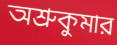
অশ্রুকুমার